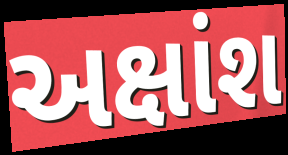
અક્ષાંશ